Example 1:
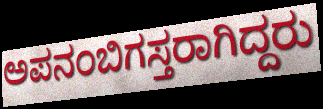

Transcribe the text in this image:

ಅಪನಂಬಿಗಸ್ತರಾಗಿದ್ದರು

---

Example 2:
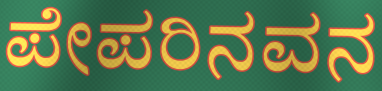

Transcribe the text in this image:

ಪೇಪರಿನವನ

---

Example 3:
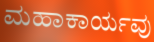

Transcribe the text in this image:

ಮಹಾಕಾರ್ಯವು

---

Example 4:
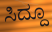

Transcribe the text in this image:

ಸಿದ್ದೂ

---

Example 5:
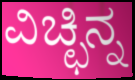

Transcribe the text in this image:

ವಿಚ್ಛಿನ್ನ